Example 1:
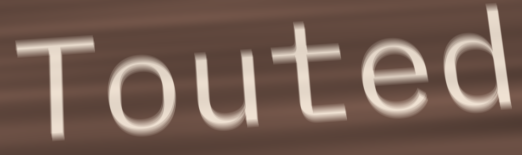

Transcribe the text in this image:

Touted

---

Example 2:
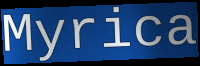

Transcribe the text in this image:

Myrica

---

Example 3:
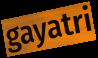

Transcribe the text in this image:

gayatri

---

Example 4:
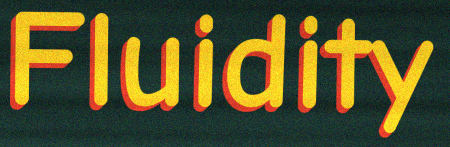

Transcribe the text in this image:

Fluidity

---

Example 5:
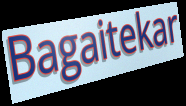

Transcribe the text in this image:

Bagaitekar